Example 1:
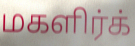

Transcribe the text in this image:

மகளிர்க்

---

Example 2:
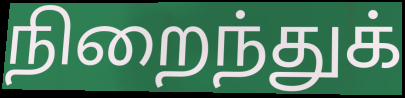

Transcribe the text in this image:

நிறைந்துக்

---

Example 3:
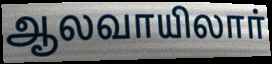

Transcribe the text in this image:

ஆலவாயிலார்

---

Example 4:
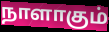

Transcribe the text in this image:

நாளாகும்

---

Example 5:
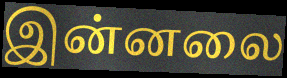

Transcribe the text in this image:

இன்னலை